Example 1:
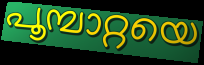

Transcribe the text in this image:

പൂമ്പാറ്റയെ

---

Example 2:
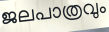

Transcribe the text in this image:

ജലപാത്രവും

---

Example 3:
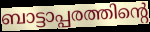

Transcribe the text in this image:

ബാട്ടാപ്പരത്തിന്റെ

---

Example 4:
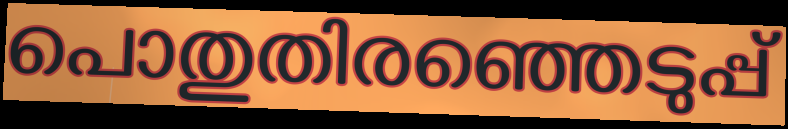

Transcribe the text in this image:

പൊതുതിരഞ്ഞെടുപ്പ്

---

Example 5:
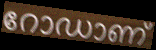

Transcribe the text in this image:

റോഡാണ്